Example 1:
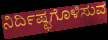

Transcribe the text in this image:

ನಿರ್ದಿಷ್ಟಗೊಳಿಸುವ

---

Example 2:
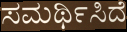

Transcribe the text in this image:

ಸಮರ್ಥಿಸಿದೆ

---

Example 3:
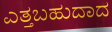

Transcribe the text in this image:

ಎತ್ತಬಹುದಾದ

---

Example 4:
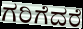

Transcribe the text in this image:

ಗರಿಗೆದರೆ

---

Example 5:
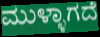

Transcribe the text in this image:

ಮುಳ್ಳಾಗದೆ